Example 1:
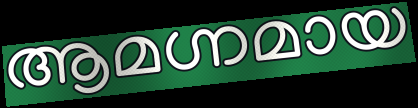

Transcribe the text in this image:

ആമഗ്നമായ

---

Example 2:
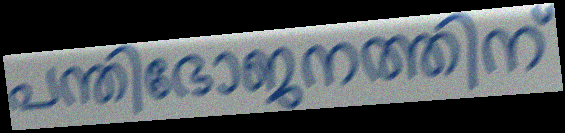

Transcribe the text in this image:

പന്തിഭോജനത്തിന്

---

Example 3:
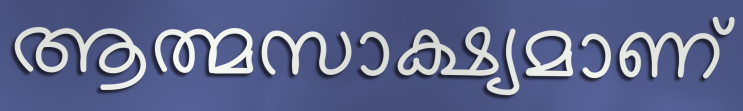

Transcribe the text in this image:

ആത്മസാക്ഷ്യമാണ്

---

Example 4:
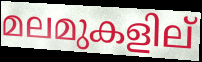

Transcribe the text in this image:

മലമുകളില്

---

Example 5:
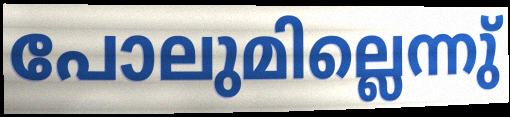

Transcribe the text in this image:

പോലുമില്ലെന്നു്